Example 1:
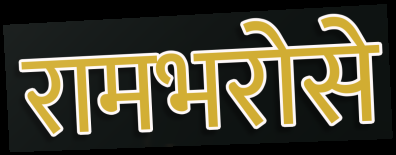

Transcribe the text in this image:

रामभरोसे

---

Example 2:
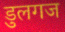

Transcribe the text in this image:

डुलगज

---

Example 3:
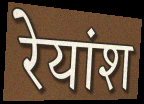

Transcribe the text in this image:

रेयांश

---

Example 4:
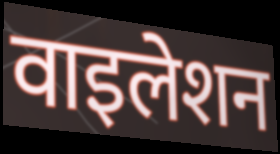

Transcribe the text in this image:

वाइलेशन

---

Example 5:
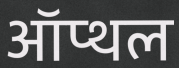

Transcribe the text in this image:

ऑप्थल